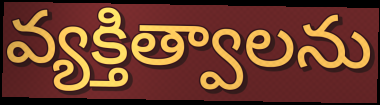
వ్యక్తిత్వాలను